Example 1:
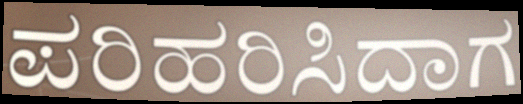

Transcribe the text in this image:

ಪರಿಹರಿಸಿದಾಗ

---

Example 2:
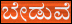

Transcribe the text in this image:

ಬೇಡುವೆ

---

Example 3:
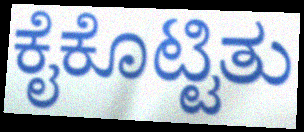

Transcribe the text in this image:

ಕೈಕೊಟ್ಟಿತು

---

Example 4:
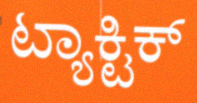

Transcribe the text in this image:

ಟ್ಯಾಕ್ಟಿಕ್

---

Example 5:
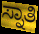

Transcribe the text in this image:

ಸ್ನಾತಿ